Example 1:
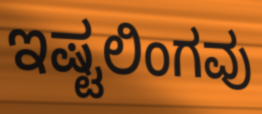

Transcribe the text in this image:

ಇಷ್ಟಲಿಂಗವು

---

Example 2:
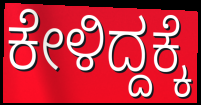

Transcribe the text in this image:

ಕೇಳಿದ್ದಕ್ಕೆ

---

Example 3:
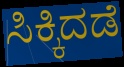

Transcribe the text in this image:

ಸಿಕ್ಕಿದಡೆ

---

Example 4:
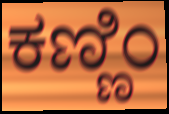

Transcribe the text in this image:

ಕಣ್ಣಿಂ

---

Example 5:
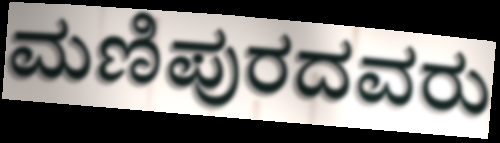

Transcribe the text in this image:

ಮಣಿಪುರದವರು